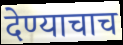
देण्याचाच